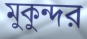
মুকুন্দর